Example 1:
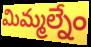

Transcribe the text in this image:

మిమ్మల్నేం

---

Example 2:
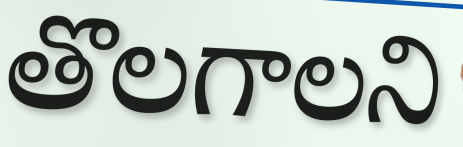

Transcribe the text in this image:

తొలగాలని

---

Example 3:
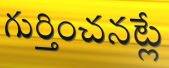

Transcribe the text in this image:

గుర్తించనట్లే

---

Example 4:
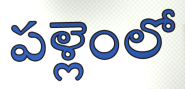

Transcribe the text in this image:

పళ్లెంలో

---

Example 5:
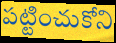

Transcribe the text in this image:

పట్టించుకోని